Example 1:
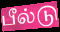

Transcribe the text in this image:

பீல்டு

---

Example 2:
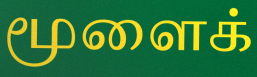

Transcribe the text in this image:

மூளைக்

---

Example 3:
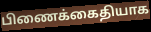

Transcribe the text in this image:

பிணைக்கைதியாக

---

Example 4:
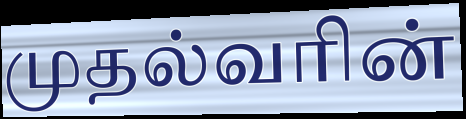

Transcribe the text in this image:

முதல்வரின்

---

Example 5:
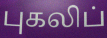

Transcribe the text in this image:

புகலிப்